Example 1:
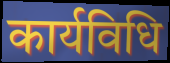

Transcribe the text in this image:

कार्यविधि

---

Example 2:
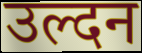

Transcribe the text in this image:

उल्दन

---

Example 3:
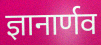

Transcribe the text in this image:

ज्ञानार्णव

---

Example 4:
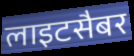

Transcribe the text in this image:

लाइटसैबर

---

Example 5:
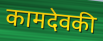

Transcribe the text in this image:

कामदेवकी